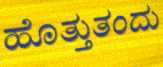
ಹೊತ್ತುತಂದು